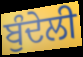
ਬੁੰਦੇਲੀ